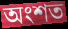
অংশত